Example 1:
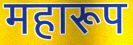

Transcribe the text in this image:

महारूप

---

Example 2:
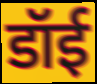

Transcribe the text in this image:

डॉई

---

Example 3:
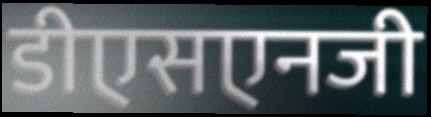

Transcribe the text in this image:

डीएसएनजी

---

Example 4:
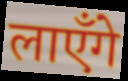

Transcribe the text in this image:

लाएँगे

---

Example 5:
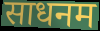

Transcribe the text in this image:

साधनम